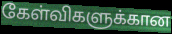
கேள்விகளுக்கான